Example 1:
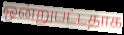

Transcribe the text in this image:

ஒன்றுபட்டதாக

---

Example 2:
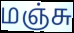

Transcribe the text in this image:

மஞ்சு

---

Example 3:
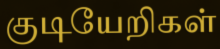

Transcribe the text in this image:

குடியேறிகள்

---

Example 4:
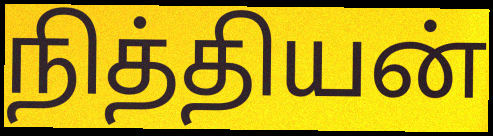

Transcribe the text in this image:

நித்தியன்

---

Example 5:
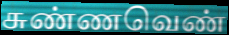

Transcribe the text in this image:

சுண்ணவெண்